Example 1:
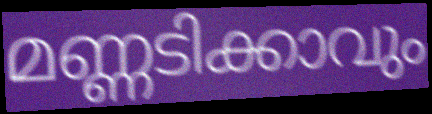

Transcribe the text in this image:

മണ്ണടിക്കാവും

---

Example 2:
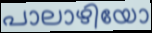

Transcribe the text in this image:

പാലാഴിയോ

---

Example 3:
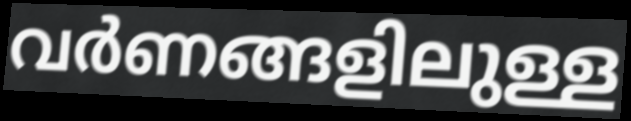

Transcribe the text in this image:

വർണങ്ങളിലുള്ള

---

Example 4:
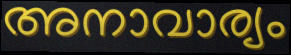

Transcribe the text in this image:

അനാവാര്യം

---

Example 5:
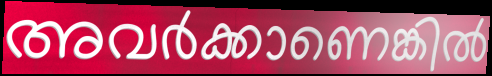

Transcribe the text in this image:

അവർക്കാണെങ്കിൽ